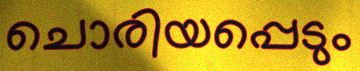
ചൊരിയപ്പെടും